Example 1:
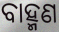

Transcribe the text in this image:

ବାହ୍ମଣ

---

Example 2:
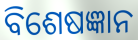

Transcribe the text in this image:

ବିଶେଷଜ୍ଞାନ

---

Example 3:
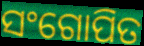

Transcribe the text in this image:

ସଂଗୋପିତ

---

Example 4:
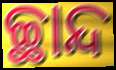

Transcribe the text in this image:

ଚ୍ଛାନ୍ଦ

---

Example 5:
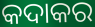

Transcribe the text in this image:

କଦାକର